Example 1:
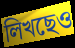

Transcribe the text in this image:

লিখছেও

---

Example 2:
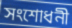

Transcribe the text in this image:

সংশোধনী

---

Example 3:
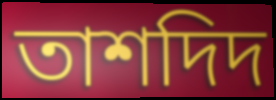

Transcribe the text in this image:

তাশদিদ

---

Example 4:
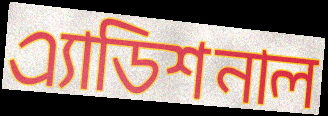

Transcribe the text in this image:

এ্যাডিশনাল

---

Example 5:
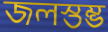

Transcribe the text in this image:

জলস্তম্ভ